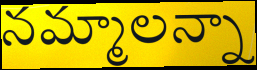
నమ్మాలన్నా